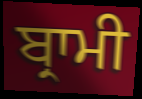
ਬ੍ਰਾਮੀ